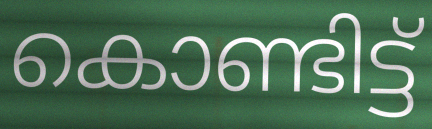
കൊണ്ടിട്ട്